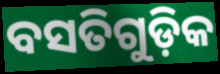
ବସତିଗୁଡ଼ିକ